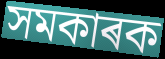
সমকাৰক